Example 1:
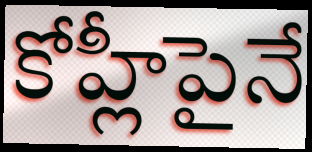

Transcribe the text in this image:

కోహ్లీపైనే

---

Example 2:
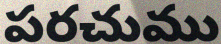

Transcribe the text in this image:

పరచుము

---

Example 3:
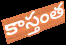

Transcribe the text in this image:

కాస్తంత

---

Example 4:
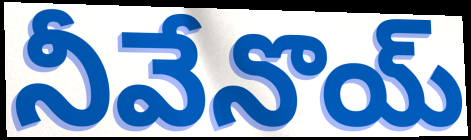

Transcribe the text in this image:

నీవేనొయ్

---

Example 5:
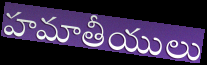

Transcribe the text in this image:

హమాతీయులు